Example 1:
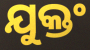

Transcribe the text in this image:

ଯୁକ୍ତଂ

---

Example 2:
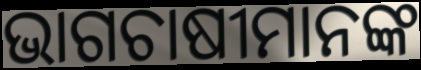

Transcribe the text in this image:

ଭାଗଚାଷୀମାନଙ୍କ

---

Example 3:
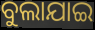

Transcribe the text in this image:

ବୁଲାଯାଇ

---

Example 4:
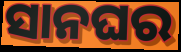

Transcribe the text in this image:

ସାନଘର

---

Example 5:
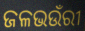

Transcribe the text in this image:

ଜଳଭଉଁରୀ